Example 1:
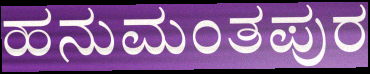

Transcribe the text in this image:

ಹನುಮಂತಪುರ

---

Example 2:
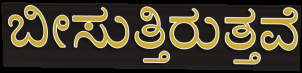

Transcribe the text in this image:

ಬೀಸುತ್ತಿರುತ್ತವೆ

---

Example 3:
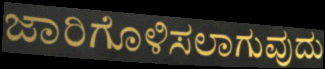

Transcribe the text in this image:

ಜಾರಿಗೊಳಿಸಲಾಗುವುದು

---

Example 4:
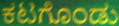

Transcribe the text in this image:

ಕಟಗೊಂಡು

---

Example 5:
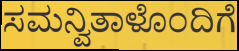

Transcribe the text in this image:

ಸಮನ್ವಿತಾಳೊಂದಿಗೆ